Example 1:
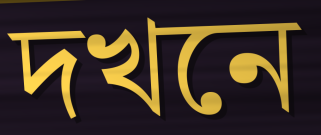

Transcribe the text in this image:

দখনে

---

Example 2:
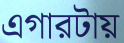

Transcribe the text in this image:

এগারটায়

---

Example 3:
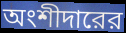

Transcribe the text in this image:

অংশীদারের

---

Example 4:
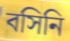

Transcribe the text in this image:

বসিনি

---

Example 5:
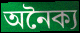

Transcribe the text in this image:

অনৈক্য